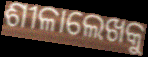
ଶୀଳାଲେଖକୁ